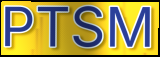
PTSM